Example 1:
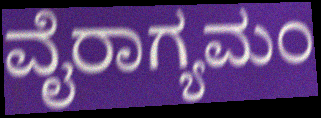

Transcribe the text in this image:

ವೈರಾಗ್ಯಮಂ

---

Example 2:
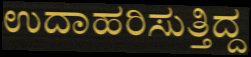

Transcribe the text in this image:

ಉದಾಹರಿಸುತ್ತಿದ್ದ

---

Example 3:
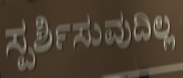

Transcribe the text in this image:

ಸ್ಪರ್ಶಿಸುವುದಿಲ್ಲ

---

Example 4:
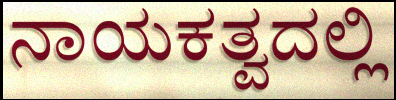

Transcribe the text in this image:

ನಾಯಕತ್ವದಲ್ಲಿ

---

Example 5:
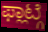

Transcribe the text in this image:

ಫ್ಲಾಟ್ಗೆ